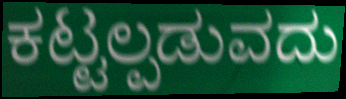
ಕಟ್ಟಲ್ಪಡುವದು